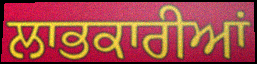
ਲਾਭਕਾਰੀਆਂ